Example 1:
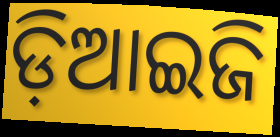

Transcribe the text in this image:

ଡ଼ିଆଇଜି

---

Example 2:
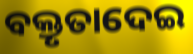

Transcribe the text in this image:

ବକ୍ତୃତାଦେଇ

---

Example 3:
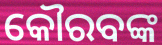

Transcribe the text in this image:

କୌରବଙ୍କ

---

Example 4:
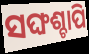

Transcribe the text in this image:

ସଙ୍ଘଶ୍ଚାପି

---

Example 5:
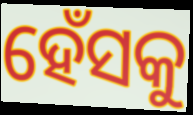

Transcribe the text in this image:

ହେଁସକୁ